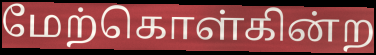
மேற்கொள்கின்ற